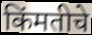
किंमतीचे